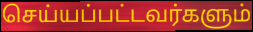
செய்யப்பட்டவர்களும்